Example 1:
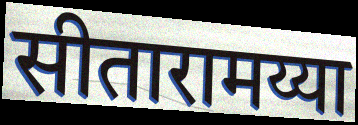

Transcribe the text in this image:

सीतारामय्या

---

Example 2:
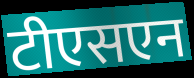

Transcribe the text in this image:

टीएसएन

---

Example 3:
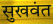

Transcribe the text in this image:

सुखवंत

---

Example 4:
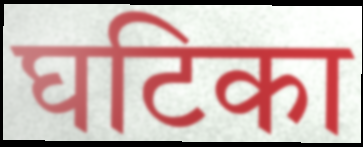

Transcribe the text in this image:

घटिका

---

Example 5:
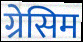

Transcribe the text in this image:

ग्रेसिम